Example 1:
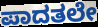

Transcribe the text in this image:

ಪಾದತಲೇ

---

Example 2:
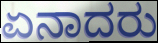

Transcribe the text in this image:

ಏನಾದರು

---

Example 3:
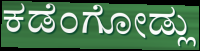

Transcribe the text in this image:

ಕಡೆಂಗೋಡ್ಲು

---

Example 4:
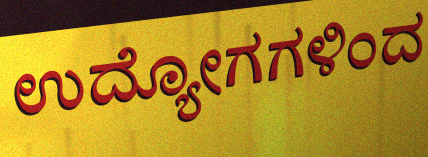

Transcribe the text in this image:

ಉದ್ಯೋಗಗಳಿಂದ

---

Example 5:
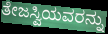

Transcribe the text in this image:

ತೇಜಸ್ವಿಯವರನ್ನು